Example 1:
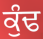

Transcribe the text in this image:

ਕੁੰਢ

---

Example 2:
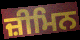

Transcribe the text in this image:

ਜ਼ੀਮਿਨ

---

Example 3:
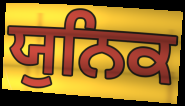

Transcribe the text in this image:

ਯੁਨਿਕ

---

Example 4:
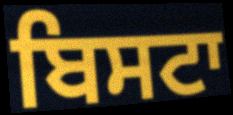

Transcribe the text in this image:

ਬਿਸਟਾ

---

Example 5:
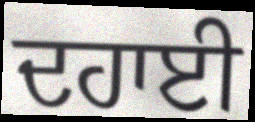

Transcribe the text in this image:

ਦਹਾਈ